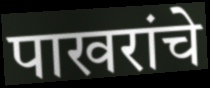
पाखरांचे